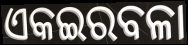
ଏକଇରବଳା